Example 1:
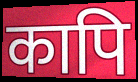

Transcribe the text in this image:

कापि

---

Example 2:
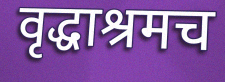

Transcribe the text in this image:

वृद्धाश्रमच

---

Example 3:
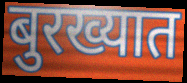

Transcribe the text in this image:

बुरख्यात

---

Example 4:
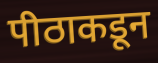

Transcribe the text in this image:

पीठाकडून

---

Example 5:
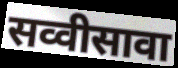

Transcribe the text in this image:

सव्वीसावा